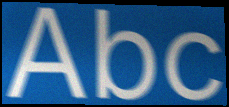
Abc